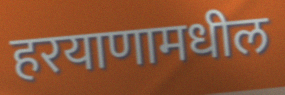
हरयाणामधील